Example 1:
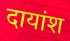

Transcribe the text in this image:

दायांश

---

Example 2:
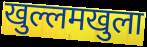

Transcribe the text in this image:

खुल्लमखुला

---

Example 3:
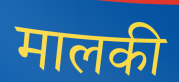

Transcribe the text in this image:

मालकी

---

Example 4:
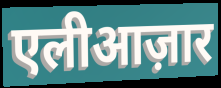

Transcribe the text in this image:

एलीआज़ार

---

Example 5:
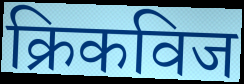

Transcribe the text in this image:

क्रिकविज